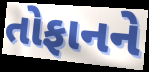
તોફાનને